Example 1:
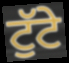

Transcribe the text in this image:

ਟੁੱਟੇ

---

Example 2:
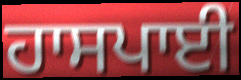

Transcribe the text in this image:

ਹਾਸਪਾਈ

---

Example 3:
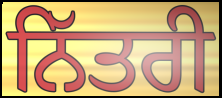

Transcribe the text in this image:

ਨਿੱਤਰੀ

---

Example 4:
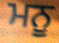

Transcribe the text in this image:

ਮਨੂ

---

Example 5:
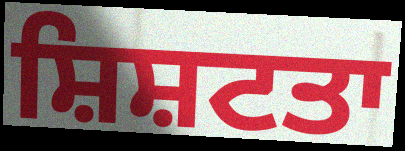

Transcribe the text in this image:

ਸ਼ਿਸ਼ਟਤਾ